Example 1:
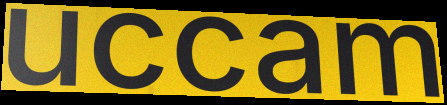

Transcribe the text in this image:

uccam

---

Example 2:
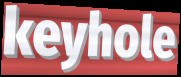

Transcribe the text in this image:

keyhole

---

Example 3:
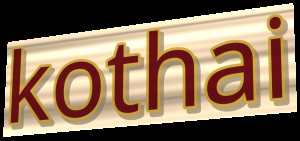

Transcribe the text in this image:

kothai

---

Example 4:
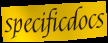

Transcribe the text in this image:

specificdocs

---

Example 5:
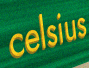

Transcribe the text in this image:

celsius